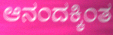
ಆನಂದಕ್ಕಿಂತ